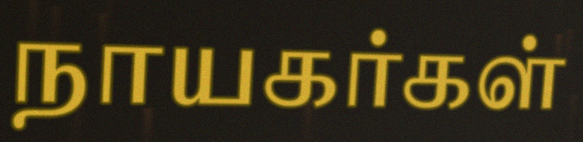
நாயகர்கள்